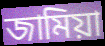
জামিয়া